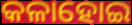
କଳାହୋଇ